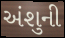
અંશુની